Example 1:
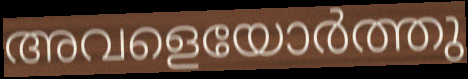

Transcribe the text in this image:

അവളെയോർത്തു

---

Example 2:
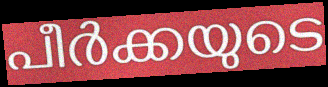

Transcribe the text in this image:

പീർക്കയുടെ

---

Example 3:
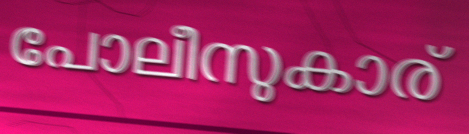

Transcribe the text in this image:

പോലീസുകാര്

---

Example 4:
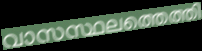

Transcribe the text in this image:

വാസസ്ഥലത്തെത്തി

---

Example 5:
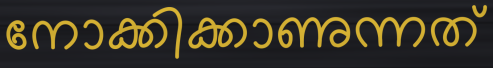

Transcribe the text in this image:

നോക്കിക്കാണുന്നത്